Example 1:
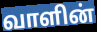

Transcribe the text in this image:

வாளின்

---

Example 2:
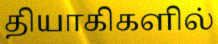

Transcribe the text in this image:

தியாகிகளில்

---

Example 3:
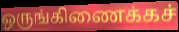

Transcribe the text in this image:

ஒருங்கிணைக்கச்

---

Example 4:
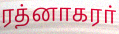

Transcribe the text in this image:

ரத்னாகரர்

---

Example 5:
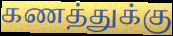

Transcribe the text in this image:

கணத்துக்கு